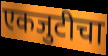
एकजुटीचा